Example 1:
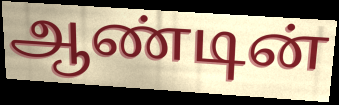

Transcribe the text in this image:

ஆண்டின்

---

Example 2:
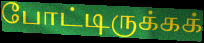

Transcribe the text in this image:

போட்டிருக்கக்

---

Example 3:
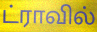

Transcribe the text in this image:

ட்ராவில்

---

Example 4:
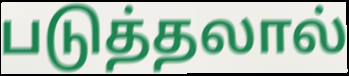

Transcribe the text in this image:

படுத்தலால்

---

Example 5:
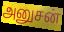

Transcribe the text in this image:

அனுசன்